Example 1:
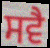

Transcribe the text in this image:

ਸਵੈ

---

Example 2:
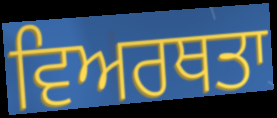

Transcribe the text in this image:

ਵਿਅਰਥਤਾ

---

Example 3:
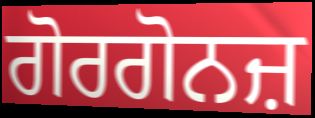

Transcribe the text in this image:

ਗੋਰਗੋਨਜ਼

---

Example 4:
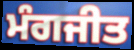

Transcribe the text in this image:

ਮੰਗਜੀਤ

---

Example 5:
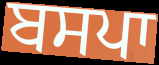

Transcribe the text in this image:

ਬਸਪਾ